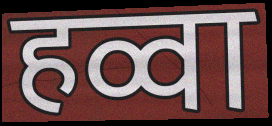
हव्वा